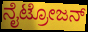
ನೈಟ್ರೋಜನ್